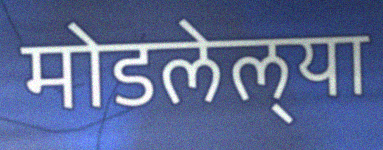
मोडलेल्या